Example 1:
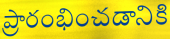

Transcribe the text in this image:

ప్రారంభించడానికి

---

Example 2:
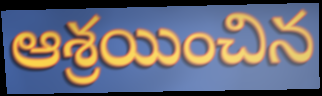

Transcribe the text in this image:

ఆశ్రయించిన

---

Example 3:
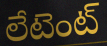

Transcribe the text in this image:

లేటెంట్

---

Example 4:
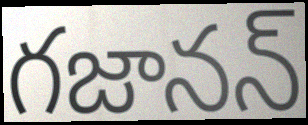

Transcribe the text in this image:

గజానన్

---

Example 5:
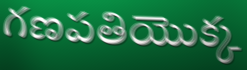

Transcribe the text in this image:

గణపతియొక్క